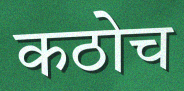
कठोच